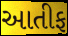
આતીફ